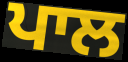
ਪਾਲ